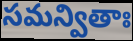
సమన్వితాః